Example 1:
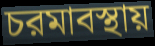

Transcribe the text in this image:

চরমাবস্থায়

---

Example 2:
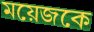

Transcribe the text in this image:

ময়েজকে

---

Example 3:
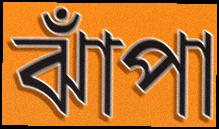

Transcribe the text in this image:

ঝাঁপা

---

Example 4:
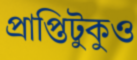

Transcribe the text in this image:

প্রাপ্তিটুকুও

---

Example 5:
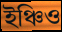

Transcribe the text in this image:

ইঞ্চিও